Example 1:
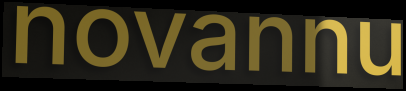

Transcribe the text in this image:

novannu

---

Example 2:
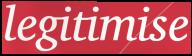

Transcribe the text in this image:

legitimise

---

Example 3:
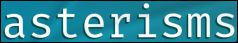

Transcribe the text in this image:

asterisms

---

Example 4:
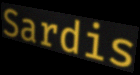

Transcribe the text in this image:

Sardis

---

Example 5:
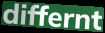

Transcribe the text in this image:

differnt